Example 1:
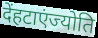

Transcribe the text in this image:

देंहटाएंज्योति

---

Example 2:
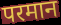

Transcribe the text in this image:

परमान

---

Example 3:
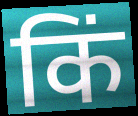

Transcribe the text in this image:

किं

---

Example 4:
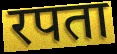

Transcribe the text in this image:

रपता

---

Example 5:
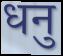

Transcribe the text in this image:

धनु